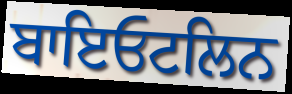
ਬਾਇਓਟਲਿਨ